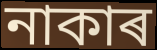
নাকাৰ